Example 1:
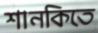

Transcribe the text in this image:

শানকিতে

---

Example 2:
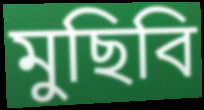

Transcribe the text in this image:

মুছিবি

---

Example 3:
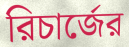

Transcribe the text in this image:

রিচার্জের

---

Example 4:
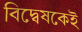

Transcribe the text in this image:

বিদ্বেষকেই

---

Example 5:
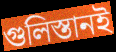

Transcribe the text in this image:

গুলিস্তানই